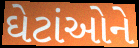
ઘેટાંઓને